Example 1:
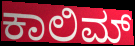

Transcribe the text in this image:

ಕಾಲಿಮ್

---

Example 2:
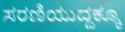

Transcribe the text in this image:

ಸರಣಿಯುದ್ದಕ್ಕೂ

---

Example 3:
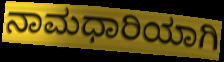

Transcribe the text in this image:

ನಾಮಧಾರಿಯಾಗಿ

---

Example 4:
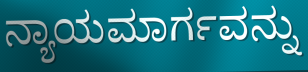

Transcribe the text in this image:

ನ್ಯಾಯಮಾರ್ಗವನ್ನು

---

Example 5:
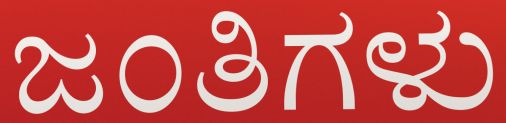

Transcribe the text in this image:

ಜಂತಿಗಳು